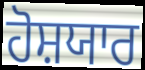
ਹੋਸ਼ਯਾਰ